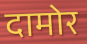
दामोर